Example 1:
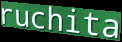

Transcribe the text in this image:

ruchita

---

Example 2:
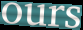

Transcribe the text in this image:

ours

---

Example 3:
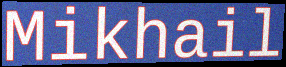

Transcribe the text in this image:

Mikhail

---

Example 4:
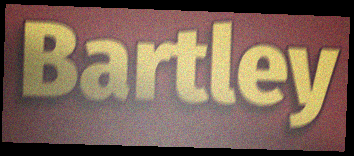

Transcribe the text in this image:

Bartley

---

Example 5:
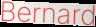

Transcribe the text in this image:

Bernard